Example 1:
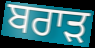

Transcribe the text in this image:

ਬਰਾੜ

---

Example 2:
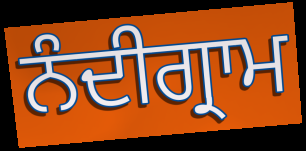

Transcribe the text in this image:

ਨੰਦੀਗ੍ਰਾਮ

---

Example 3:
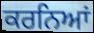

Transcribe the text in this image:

ਕਰਨਿਆਂ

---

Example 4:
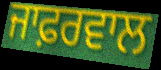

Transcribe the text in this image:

ਜਾਫ਼ਰਵਾਲ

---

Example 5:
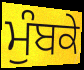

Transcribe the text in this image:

ਮੁੰਬਕੇ